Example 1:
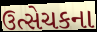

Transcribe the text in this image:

ઉત્સેચકના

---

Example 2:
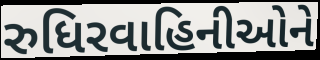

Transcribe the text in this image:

રુધિરવાહિનીઓને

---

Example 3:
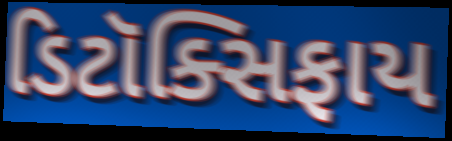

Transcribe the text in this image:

ડિટૉક્સિફાય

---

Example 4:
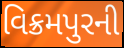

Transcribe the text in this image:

વિક્રમપુરની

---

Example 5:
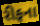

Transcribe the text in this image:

રીફના